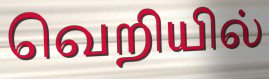
வெறியில்